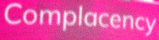
Complacency